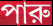
পারু